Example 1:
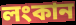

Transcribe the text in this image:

লংকান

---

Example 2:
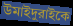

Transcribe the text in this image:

উমাইদুরাইকে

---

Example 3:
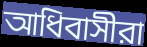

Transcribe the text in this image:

আধিবাসীরা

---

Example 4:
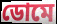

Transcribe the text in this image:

ডোমে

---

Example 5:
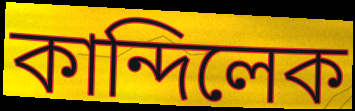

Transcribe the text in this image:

কান্দিলেক